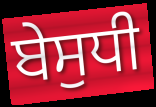
ਬੇਸੁਧੀ